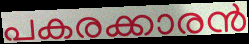
പകരക്കാരൻ